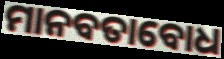
ମାନବତାବୋଧ